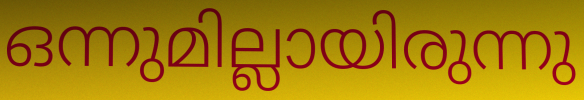
ഒന്നുമില്ലായിരുന്നു